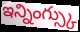
ఇన్నింగ్స్కు